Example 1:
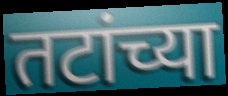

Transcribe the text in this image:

तटांच्या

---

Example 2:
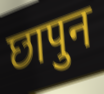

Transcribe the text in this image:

छापुन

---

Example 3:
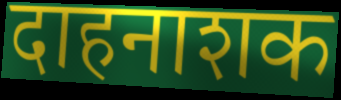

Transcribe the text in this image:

दाहनाशक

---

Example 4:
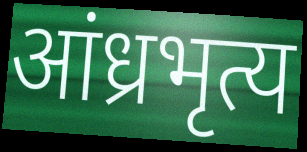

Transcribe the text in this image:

आंध्रभृत्य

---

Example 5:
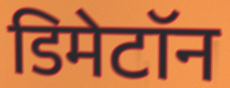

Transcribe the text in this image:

डिमेटॉन